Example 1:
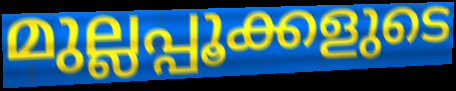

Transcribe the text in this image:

മുല്ലപ്പൂക്കളുടെ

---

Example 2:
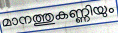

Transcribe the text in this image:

മാനത്തുകണ്ണിയും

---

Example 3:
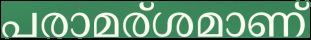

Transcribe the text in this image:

പരാമര്ശമാണ്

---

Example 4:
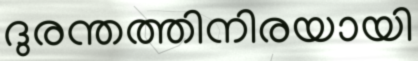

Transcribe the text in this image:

ദുരന്തത്തിനിരയായി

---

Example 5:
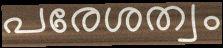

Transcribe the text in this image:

പരേശത്വം